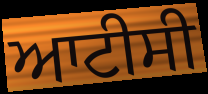
ਆਟੀਸੀ